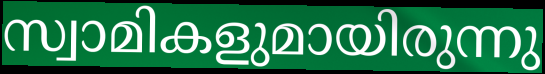
സ്വാമികളുമായിരുന്നു